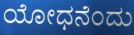
ಯೋಧನೆಂದು